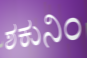
ಶಕುನಿಂ